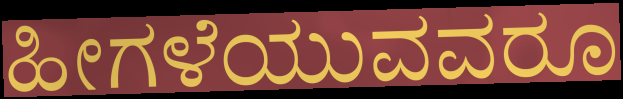
ಹೀಗಳೆಯುವವರೂ